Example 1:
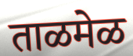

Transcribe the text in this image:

ताळमेळ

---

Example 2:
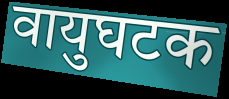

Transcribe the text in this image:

वायुघटक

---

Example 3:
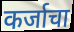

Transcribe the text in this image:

कर्जाचा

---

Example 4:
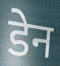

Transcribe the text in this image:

डेन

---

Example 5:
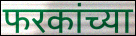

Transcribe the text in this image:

फरकांच्या